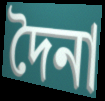
দৈনা